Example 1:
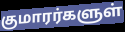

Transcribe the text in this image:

குமாரர்களுள்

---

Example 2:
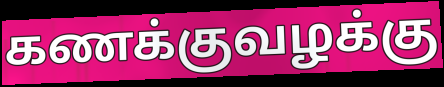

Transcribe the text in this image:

கணக்குவழக்கு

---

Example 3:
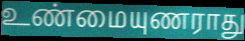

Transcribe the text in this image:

உண்மையுணராது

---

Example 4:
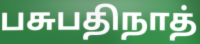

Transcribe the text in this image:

பசுபதிநாத்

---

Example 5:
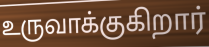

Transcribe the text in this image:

உருவாக்குகிறார்